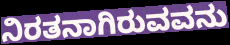
ನಿರತನಾಗಿರುವವನು